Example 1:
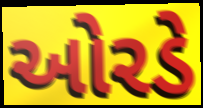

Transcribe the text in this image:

ઓરડે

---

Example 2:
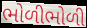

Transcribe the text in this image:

ભોળીભોળી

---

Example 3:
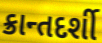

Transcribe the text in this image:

ક્રાન્તદર્શી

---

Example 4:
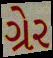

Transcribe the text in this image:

ગ્રેર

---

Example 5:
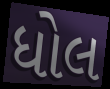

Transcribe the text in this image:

ધોલ